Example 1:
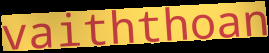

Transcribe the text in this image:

vaiththoan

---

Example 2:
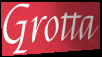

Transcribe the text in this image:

Grotta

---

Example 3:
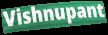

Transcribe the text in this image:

Vishnupant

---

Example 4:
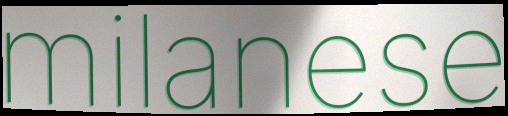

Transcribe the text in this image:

milanese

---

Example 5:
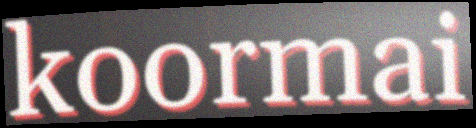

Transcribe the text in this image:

koormai